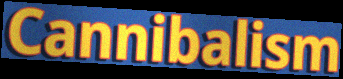
Cannibalism